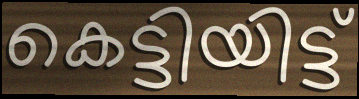
കെട്ടിയിട്ട്